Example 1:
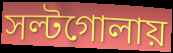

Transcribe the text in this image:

সল্টগোলায়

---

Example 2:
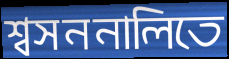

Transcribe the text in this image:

শ্বসননালিতে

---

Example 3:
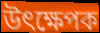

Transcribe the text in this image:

উৎক্ষেপক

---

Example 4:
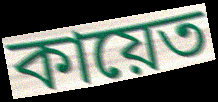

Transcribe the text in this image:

কায়েত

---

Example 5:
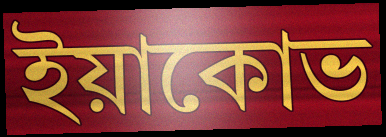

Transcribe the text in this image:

ইয়াকোভ